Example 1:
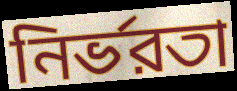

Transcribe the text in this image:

নির্ভরতা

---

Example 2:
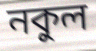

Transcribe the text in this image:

নকুল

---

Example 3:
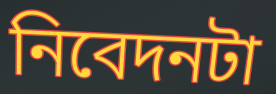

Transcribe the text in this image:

নিবেদনটা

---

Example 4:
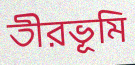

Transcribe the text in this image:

তীরভূমি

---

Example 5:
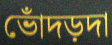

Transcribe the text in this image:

ভোঁদড়দা